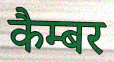
कैम्बर